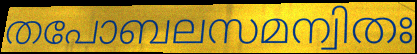
തപോബലസമന്വിതഃ